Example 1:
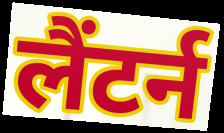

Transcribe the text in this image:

लैंटर्न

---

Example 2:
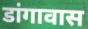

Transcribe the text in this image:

डांगावास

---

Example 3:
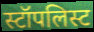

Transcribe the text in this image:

स्टॉपलिस्ट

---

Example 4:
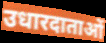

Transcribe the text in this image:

उधारदाताओं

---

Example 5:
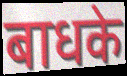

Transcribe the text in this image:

बाधके